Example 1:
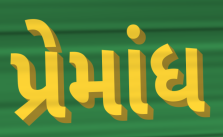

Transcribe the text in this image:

પ્રેમાંધ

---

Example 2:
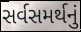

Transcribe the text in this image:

સર્વસમર્થનું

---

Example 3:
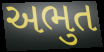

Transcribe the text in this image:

અભુત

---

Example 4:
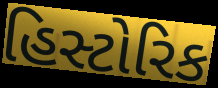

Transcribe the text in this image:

હિસ્ટોરિક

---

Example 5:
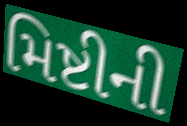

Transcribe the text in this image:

મિષ્ટીની